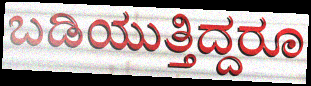
ಬಡಿಯುತ್ತಿದ್ದರೂ